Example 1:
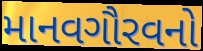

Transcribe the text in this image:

માનવગૌરવનો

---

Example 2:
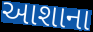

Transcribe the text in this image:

આશાના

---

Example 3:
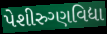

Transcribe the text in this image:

પેશીરુગ્ણવિદ્યા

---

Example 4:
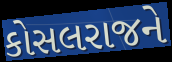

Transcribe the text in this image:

કોસલરાજને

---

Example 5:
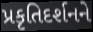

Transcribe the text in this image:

પ્રકૃતિદર્શનને